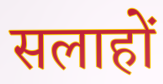
सलाहों